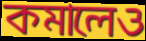
কমালেও